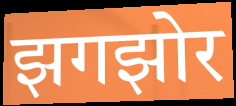
झगझोर